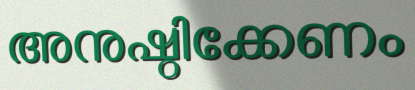
അനുഷ്ഠിക്കേണം